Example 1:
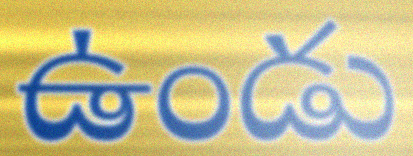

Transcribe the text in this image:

ఉండు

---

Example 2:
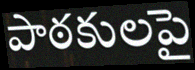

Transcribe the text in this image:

పాఠకులపై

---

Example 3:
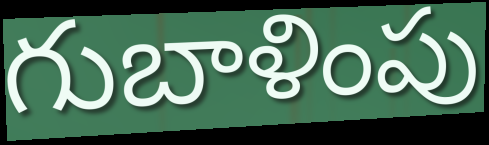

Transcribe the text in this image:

గుబాళింపు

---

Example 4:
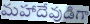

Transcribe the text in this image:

మహాదేవుడిగా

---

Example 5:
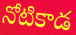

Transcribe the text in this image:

నోటికాడ